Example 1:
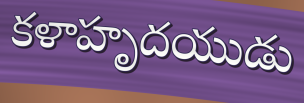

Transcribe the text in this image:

కళాహృదయుడు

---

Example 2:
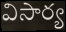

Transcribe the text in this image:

విసార్య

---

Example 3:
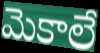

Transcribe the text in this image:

మెకాలే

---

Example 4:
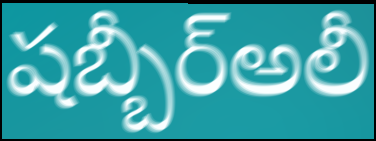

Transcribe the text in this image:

షబ్బీర్అలీ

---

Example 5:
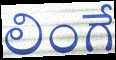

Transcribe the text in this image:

లింగే